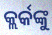
କ୍ଲର୍କଙ୍କୁ